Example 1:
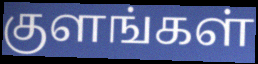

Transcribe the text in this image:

குளங்கள்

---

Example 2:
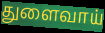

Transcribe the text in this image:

துளைவாய்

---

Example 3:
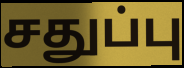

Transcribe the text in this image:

சதுப்பு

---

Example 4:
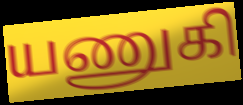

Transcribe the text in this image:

யணுகி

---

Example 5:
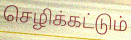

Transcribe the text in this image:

செழிக்கட்டும்